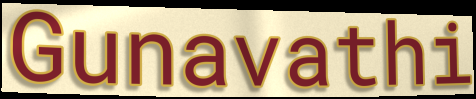
Gunavathi